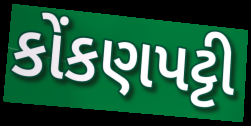
કોંકણપટ્ટી